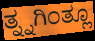
ತ್ನ್ನಗಿಂತ್ಲೂ